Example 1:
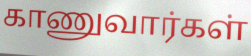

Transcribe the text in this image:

காணுவார்கள்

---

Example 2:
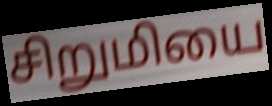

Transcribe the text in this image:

சிறுமியை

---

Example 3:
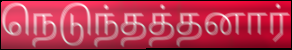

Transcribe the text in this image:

நெடுந்தத்தனார்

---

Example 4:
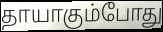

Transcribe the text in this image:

தாயாகும்போது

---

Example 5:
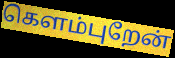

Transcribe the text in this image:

கெளம்புறேன்